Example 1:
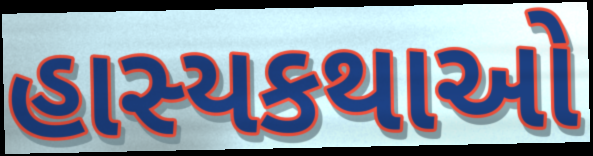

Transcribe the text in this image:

હાસ્યકથાઓ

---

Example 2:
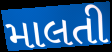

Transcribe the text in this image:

માલતી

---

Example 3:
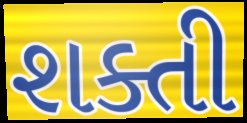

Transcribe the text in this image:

શક્તી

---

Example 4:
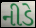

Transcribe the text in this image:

નીડે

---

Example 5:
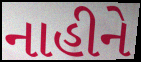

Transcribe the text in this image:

નાહીને